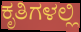
ಕೃತಿಗಳಲ್ಲಿ